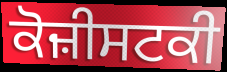
ਕੋਜ਼ੀਸਟਕੀ